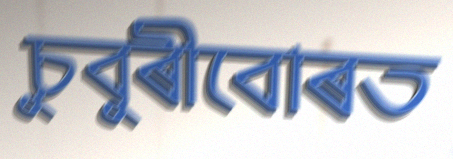
চুবুৰীবোৰত